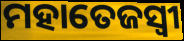
ମହାତେଜସ୍ୱୀ